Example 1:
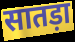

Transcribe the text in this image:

सातड़ा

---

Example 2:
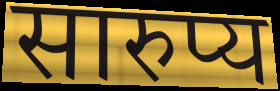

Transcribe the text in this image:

सारुप्य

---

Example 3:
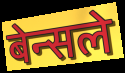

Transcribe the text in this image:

बेन्सले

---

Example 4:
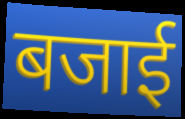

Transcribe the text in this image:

बजाई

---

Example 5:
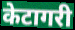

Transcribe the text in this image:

केटागरी